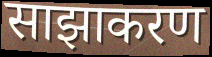
साझाकरण